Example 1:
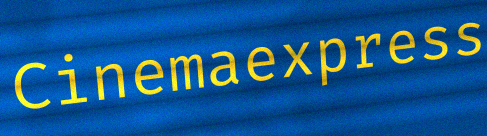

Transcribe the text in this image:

Cinemaexpress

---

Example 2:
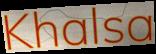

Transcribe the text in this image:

Khalsa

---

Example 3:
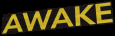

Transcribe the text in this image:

AWAKE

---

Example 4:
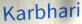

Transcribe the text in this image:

Karbhari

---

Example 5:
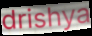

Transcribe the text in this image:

drishya